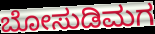
ಬೋಸುಡಿಮಗ